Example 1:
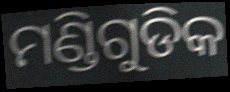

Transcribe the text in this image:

ମଣ୍ଡିଗୁଡିକ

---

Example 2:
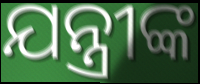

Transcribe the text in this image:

ଯନ୍ତ୍ରୀଙ୍କ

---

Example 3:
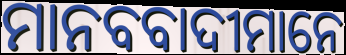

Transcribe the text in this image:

ମାନବବାଦୀମାନେ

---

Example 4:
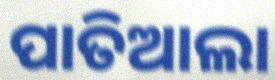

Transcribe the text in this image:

ପାତିଆଲା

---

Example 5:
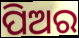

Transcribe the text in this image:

ପିଅର